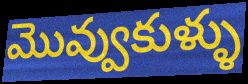
మొవ్వుకుళ్ళు